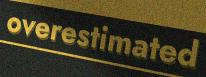
overestimated